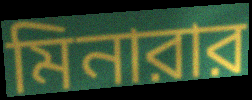
মিনারার